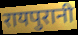
रायपुरानी